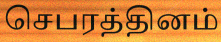
செபரத்தினம்